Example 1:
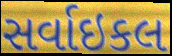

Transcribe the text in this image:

સર્વાઇકલ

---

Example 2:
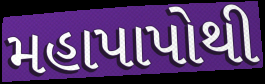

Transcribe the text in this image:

મહાપાપોથી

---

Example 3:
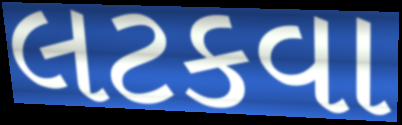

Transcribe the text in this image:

લટકવા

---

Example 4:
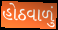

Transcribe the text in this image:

હોઠવાળું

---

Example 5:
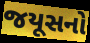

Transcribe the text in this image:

જયૂસનો